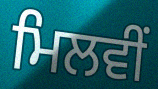
ਮਿਲਵੀਂ